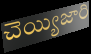
చెయ్యిజారి